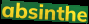
absinthe